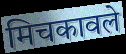
मिचकावले